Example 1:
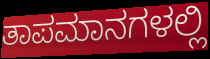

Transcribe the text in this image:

ತಾಪಮಾನಗಳಲ್ಲಿ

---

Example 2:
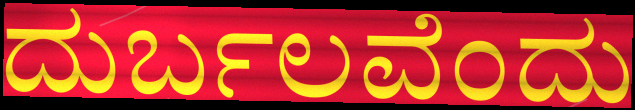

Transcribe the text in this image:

ದುರ್ಬಲವೆಂದು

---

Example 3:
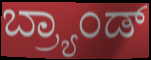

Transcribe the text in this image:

ಬ್ರ್ಯಾಂಡ್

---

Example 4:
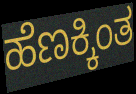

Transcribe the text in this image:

ಹೆಣಕ್ಕಿಂತ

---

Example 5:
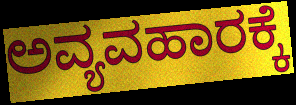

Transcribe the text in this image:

ಅವ್ಯವಹಾರಕ್ಕೆ